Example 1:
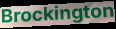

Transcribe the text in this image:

Brockington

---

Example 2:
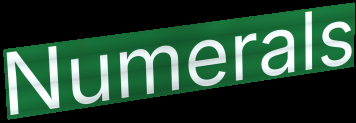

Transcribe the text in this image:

Numerals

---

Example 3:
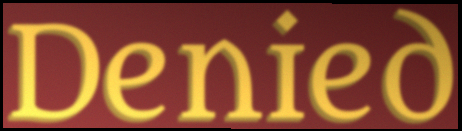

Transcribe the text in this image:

Denied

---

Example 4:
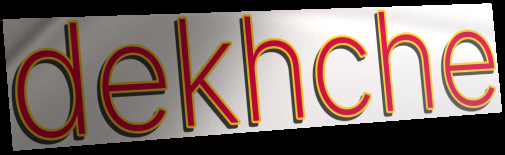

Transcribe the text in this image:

dekhche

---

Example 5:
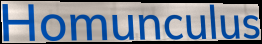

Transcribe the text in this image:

Homunculus